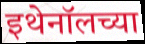
इथेनॉलच्या